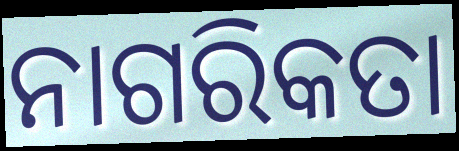
ନାଗରିକତା